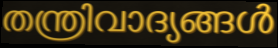
തന്ത്രിവാദ്യങ്ങൾ